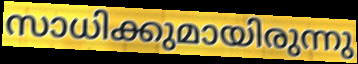
സാധിക്കുമായിരുന്നു